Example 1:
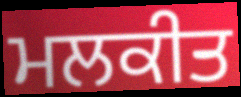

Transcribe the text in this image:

ਮਲਕੀਤ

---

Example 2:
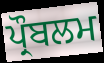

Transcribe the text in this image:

ਪ੍ਰੌਬਲਮ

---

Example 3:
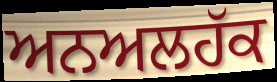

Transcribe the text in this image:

ਅਨਅਲਹੱਕ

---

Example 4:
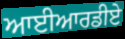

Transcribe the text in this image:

ਆਈਆਰਡੀਏ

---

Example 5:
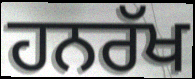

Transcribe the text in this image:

ਹਨਰੱਖ